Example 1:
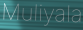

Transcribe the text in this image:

Muliyala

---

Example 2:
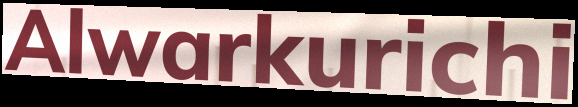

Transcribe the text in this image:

Alwarkurichi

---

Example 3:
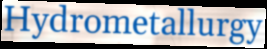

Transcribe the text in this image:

Hydrometallurgy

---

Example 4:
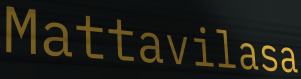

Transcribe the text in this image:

Mattavilasa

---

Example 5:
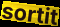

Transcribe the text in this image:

sortit